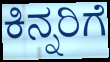
ಕಿನ್ನರಿಗೆ